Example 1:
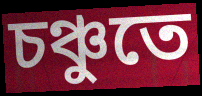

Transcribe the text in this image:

চঞ্চুতে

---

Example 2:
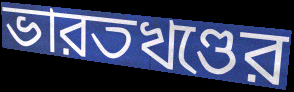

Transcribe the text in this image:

ভারতখণ্ডের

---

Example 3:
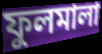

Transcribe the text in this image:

ফুলমালা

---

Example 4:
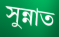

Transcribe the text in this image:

সুন্নাত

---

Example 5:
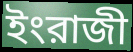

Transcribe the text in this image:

ইংরাজী